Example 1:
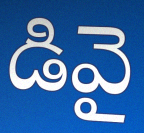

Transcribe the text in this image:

డివై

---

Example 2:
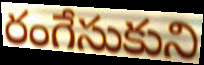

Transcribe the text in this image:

రంగేసుకుని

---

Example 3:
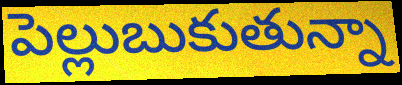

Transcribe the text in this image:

పెల్లుబుకుతున్నా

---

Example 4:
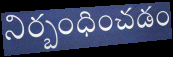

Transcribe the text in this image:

నిర్బంధించడం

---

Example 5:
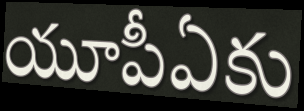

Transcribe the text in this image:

యూపీఏకు